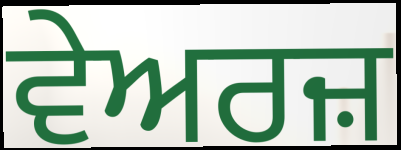
ਵੇਅਰਜ਼